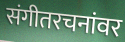
संगीतरचनांवर